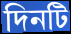
দিনটি